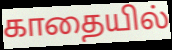
காதையில்